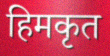
हिमकृत